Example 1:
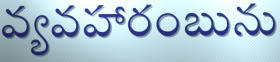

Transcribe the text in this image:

వ్యవహారంబును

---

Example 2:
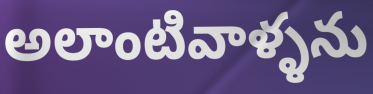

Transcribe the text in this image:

అలాంటివాళ్ళను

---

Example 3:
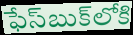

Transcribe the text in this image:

ఫేస్‌బుక్‌లోకి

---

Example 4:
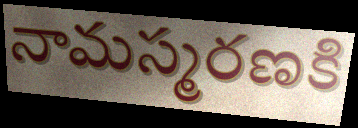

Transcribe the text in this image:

నామస్మరణకి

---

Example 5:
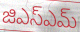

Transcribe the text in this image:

జిఎస్ఎమ్